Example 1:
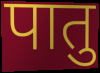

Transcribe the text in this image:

पातु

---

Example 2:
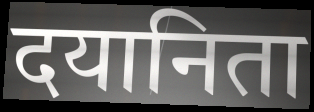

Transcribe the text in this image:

दयानिता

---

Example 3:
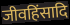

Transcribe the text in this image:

जीवहिंसादि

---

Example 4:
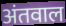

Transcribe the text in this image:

अंतवाल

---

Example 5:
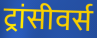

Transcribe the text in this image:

ट्रांसीवर्स